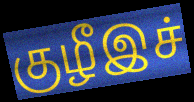
குழீஇச்